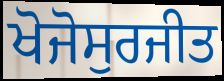
ਖੋਜੋਸੁਰਜੀਤ